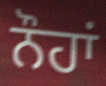
ਨੌਹਾਂ